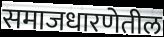
समाजधारणेतील